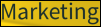
Marketing